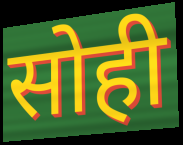
सोही